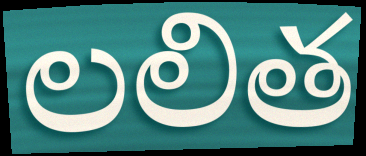
లలిత